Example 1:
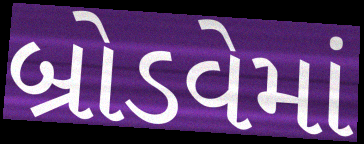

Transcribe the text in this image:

બ્રોડવેમાં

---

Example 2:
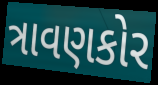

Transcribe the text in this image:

ત્રાવણકોર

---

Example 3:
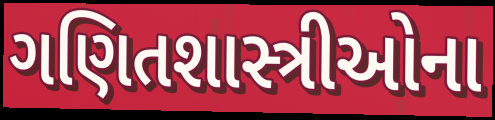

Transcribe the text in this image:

ગણિતશાસ્ત્રીઓના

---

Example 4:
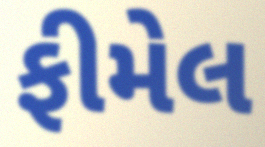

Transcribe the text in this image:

ફીમેલ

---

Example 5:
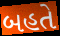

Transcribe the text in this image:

બહતે